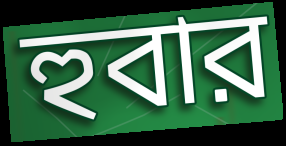
হুবার